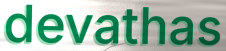
devathas